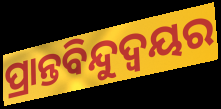
ପ୍ରାନ୍ତବିନ୍ଦୁଦ୍ଵୟର